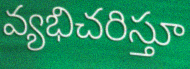
వ్యభిచరిస్తూ